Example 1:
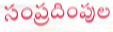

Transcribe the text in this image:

సంప్రదింపుల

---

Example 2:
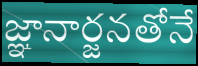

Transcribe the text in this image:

జ్ఞానార్జనతోనే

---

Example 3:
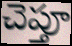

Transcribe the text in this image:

చెప్తూ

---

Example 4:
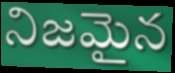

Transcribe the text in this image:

నిజమైన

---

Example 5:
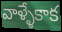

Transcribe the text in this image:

వాళ్ళేకాక